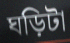
ঘড়িটা